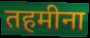
तहमीना